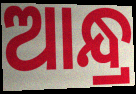
ଆନ୍ଧ୍ର